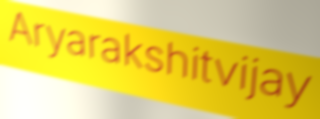
Aryarakshitvijay